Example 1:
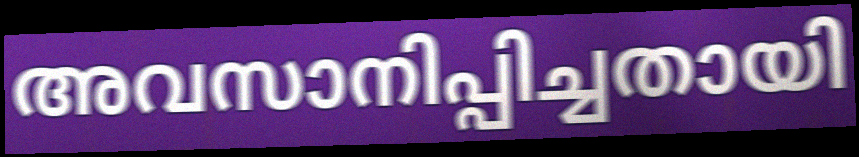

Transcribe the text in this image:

അവസാനിപ്പിച്ചതായി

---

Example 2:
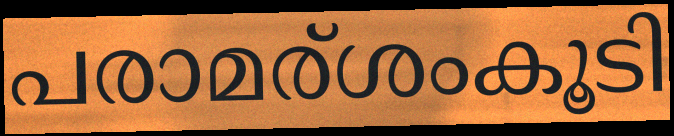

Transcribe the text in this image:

പരാമര്ശംകൂടി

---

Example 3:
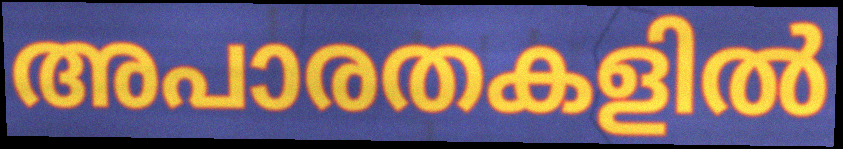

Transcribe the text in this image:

അപാരതകളിൽ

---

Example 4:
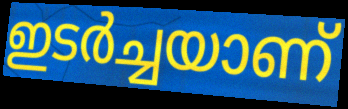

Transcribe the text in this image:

ഇടർച്ചയാണ്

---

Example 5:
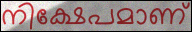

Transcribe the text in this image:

നിക്ഷേപമാണ്